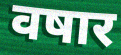
वषार